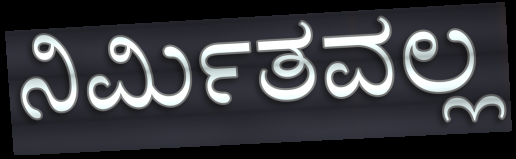
ನಿರ್ಮಿತವಲ್ಲ